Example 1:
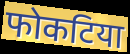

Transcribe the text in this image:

फोकटिया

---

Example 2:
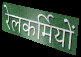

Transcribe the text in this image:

रेलकर्मियों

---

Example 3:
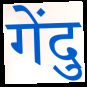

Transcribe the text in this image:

गेंदु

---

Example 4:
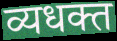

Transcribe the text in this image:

व्यधक्त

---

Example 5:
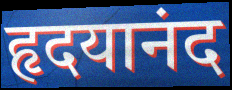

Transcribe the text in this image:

हृदयानंद